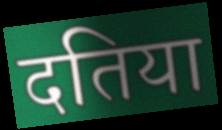
दतिया